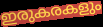
ഇരുകരകളും